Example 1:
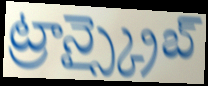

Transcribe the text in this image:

ట్రాన్స్క్రైబ్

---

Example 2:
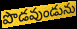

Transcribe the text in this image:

పొడవుండును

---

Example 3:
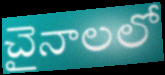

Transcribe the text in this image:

చైనాలలో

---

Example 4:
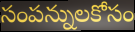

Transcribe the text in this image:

సంపన్నులకోసం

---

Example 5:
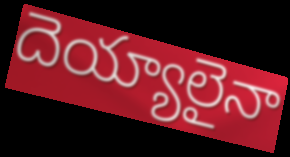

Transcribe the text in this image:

దెయ్యాలైనా